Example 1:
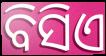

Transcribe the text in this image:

ବିସିଏ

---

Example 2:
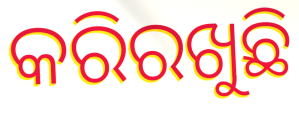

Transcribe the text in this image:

କରିରଖୁଛି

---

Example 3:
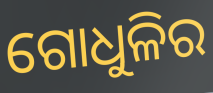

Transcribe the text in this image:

ଗୋଧୁଳିର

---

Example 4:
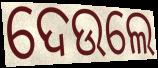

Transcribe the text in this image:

ଦେଉଲେ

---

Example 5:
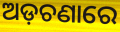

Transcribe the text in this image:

ଅଡ଼ଚଣାରେ